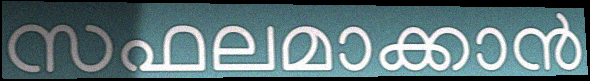
സഫലമാക്കാൻ